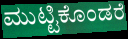
ಮುಟ್ಟಿಕೊಂಡರೆ